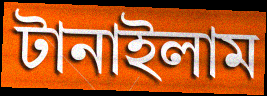
টানাইলাম